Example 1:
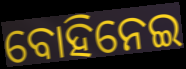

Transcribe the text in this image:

ବୋହିନେଇ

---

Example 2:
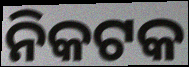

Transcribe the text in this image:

ନିକଟକ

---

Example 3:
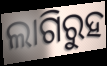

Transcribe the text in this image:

ଲାଗିରୁହ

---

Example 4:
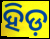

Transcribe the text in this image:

ହିଡ଼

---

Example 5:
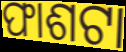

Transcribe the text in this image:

ଫାଶଟା